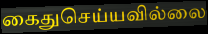
கைதுசெய்யவில்லை